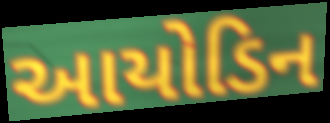
આયોડિન